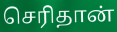
செரிதான்